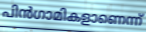
പിൻഗാമികളാണെന്ന്